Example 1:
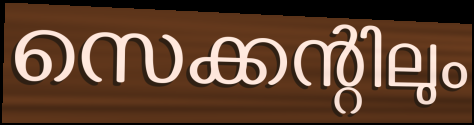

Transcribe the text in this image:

സെക്കന്റിലും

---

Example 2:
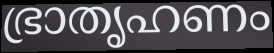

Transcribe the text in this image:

ഭ്രാതൃഹണം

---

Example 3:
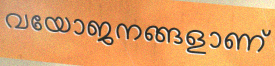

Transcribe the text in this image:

വയോജനങ്ങളാണ്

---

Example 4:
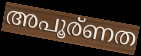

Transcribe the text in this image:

അപൂര്ണത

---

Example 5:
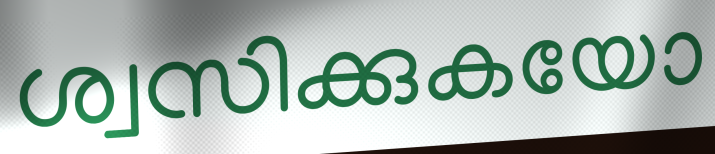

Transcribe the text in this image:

ശ്വസിക്കുകയോ